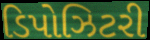
ડિપોઝિટરી